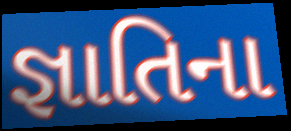
જ્ઞાતિના